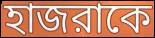
হাজরাকে